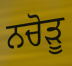
ਨਚੋੜੂ